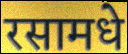
रसामधे